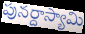
పునర్దాస్యామి